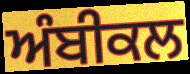
ਅੰਬੀਕਲ